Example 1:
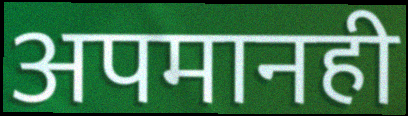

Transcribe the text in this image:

अपमानही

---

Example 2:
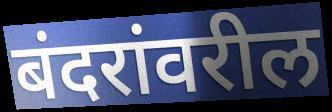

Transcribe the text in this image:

बंदरांवरील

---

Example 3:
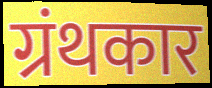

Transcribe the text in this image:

ग्रंथकार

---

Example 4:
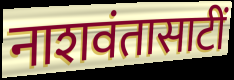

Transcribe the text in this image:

नाशवंतासाटीं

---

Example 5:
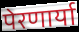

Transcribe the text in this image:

पेरणार्या